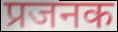
प्रजनक